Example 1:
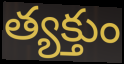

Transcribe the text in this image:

త్యక్తుం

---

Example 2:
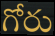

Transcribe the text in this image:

గోరు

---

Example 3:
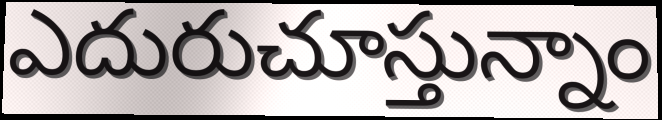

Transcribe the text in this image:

ఎదురుచూస్తున్నాం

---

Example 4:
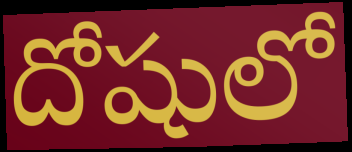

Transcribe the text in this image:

దోషులో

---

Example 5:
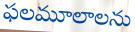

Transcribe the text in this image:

ఫలమూలాలను